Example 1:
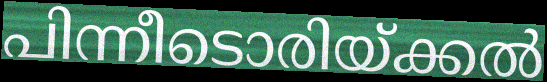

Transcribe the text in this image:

പിന്നീടൊരിയ്ക്കൽ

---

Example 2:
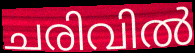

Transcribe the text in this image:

ചരിവിൽ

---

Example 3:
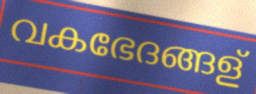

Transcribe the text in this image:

വകഭേദങ്ങള്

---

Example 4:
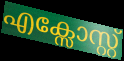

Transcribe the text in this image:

എക്സോസ്റ്റ്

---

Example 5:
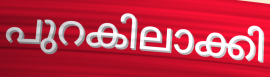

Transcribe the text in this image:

പുറകിലാക്കി